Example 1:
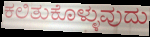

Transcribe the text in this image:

ಕಲಿತುಕೊಳ್ಳುವುದು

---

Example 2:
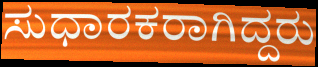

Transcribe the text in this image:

ಸುಧಾರಕರಾಗಿದ್ದರು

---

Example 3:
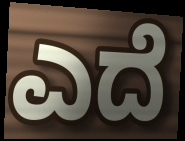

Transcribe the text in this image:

ಎದೆ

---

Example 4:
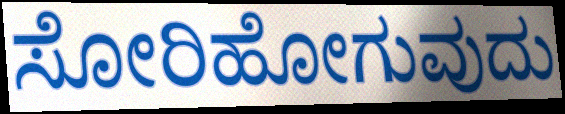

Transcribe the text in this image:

ಸೋರಿಹೋಗುವುದು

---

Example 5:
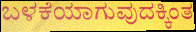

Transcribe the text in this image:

ಬಳಕೆಯಾಗುವುದಕ್ಕಿಂತ